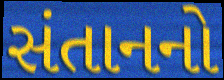
સંતાનનો